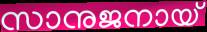
സാനുജനായ്